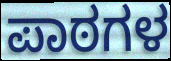
ಪಾಠಗಳ